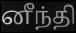
னீந்தி